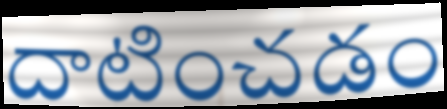
దాటించడం